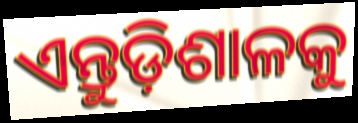
ଏନ୍ତୁଡ଼ିଶାଳକୁ